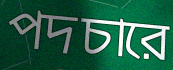
পদচারে